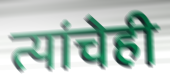
त्यांचेही